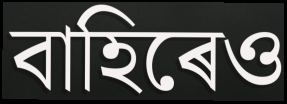
বাহিৰেও